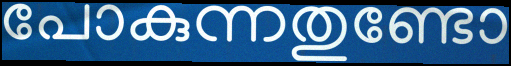
പോകുന്നതുണ്ടോ